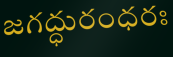
జగద్ధురంధరః